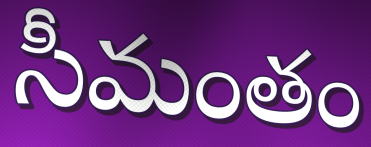
సీమంతం